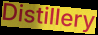
Distillery